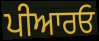
ਪੀਆਰਓ